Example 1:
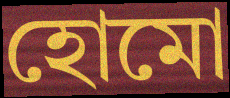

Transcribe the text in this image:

হোমো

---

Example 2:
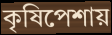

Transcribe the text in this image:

কৃষিপেশায়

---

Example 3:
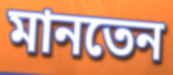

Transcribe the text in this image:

মানতেন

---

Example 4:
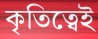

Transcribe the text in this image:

কৃতিত্বেই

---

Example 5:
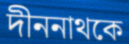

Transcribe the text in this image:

দীননাথকে